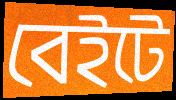
বেইটে